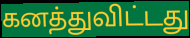
கனத்துவிட்டது